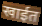
खाईत